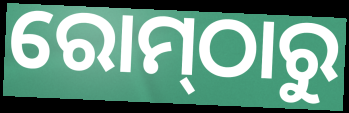
ରୋମ୍‌ଠାରୁ